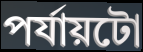
পৰ্যায়টো